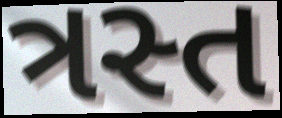
ત્રસ્ત